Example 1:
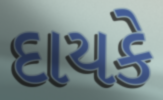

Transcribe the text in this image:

દાયકે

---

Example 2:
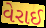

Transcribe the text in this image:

વેરાઈ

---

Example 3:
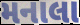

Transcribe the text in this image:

મનાલા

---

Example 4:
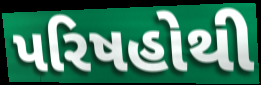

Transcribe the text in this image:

પરિષહોથી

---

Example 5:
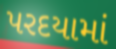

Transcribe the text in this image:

પરદયામાં